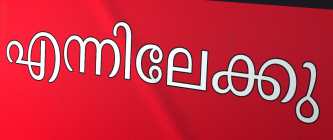
എന്നിലേക്കു